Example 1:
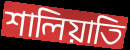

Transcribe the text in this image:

শালিয়াতি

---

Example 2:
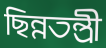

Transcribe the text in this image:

ছিন্নতন্ত্রী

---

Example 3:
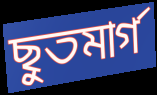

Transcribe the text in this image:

ছুতমার্গ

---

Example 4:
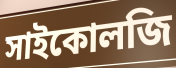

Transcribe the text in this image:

সাইকোলজি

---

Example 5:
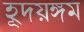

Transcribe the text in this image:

হূদয়ঙ্গম